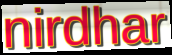
nirdhar